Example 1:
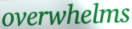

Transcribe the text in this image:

overwhelms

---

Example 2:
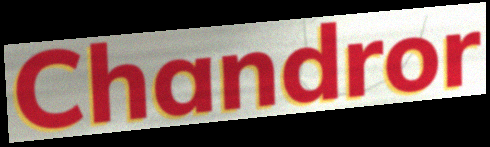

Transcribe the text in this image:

Chandror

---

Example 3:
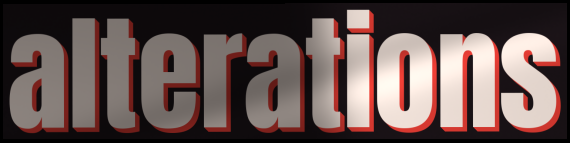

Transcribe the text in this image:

alterations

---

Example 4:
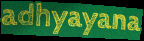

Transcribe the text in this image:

adhyayana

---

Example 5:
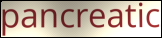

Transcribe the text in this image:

pancreatic